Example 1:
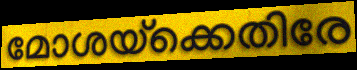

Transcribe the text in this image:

മോശയ്‌ക്കെതിരേ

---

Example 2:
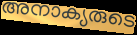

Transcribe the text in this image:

അനാക്യരുടെ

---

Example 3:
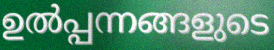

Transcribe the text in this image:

ഉൽപ്പന്നങ്ങളുടെ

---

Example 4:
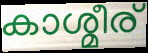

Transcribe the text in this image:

കാശ്മീര്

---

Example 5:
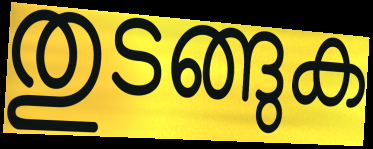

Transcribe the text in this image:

തുടങ്ങുക